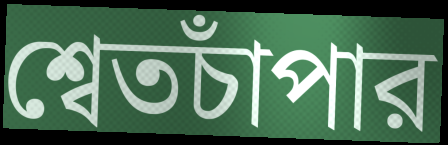
শ্বেতচাঁপার